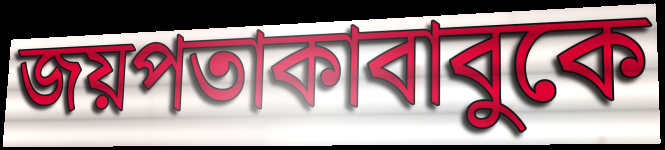
জয়পতাকাবাবুকে